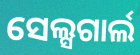
ସେଲ୍ସଗାର୍ଲ